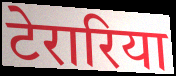
टेरारिया